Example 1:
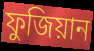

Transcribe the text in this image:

ফুজিয়ান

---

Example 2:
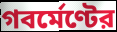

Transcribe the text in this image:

গবর্মেণ্টের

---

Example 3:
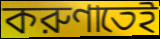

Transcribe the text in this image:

করুণাতেই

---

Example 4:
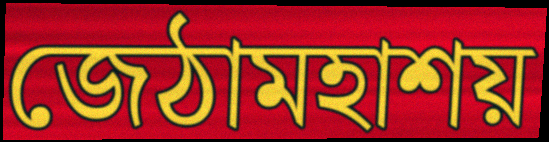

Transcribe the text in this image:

জেঠামহাশয়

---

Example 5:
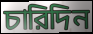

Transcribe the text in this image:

চারিদিন